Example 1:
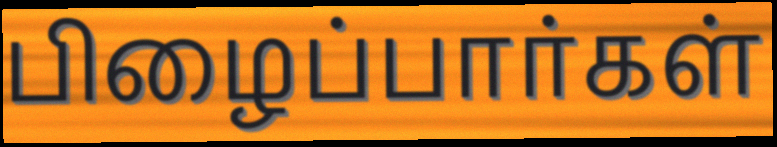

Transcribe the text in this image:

பிழைப்பார்கள்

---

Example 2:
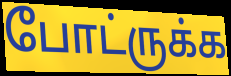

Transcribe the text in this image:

போட்ருக்க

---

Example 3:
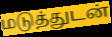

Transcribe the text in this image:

மடுத்துடன்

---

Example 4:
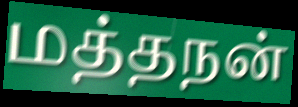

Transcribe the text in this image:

மத்தநன்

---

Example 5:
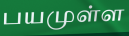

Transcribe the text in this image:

பயமுள்ள